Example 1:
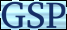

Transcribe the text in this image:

GSP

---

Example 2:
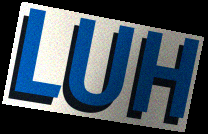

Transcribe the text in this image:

LUH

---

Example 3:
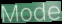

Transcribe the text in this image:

Mode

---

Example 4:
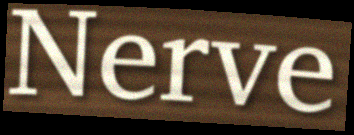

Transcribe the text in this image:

Nerve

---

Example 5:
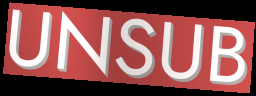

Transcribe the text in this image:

UNSUB